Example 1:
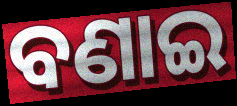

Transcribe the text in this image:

ବଣାଇ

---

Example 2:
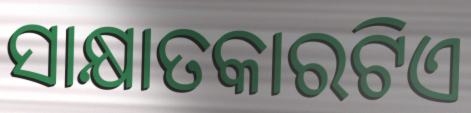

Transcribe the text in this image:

ସାକ୍ଷାତକାରଟିଏ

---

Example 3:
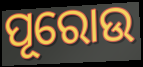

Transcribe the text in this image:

ପୂରୋଉ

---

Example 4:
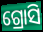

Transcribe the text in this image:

ଗ୍ରୋସି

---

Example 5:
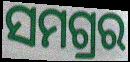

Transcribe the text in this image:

ସମଗ୍ରର